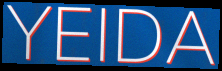
YEIDA